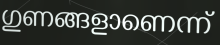
ഗുണങ്ങളാണെന്ന്